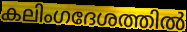
കലിംഗദേശത്തിൽ